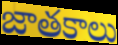
జాతకాలు